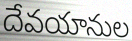
దేవయానుల